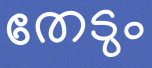
തേടും